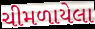
ચીમળાયેલા